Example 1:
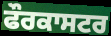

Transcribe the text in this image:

ਫੌਰਕਾਸਟਰ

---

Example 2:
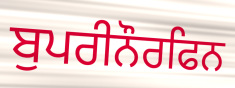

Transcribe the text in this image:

ਬੁਪਰੀਨੌਰਫਿਨ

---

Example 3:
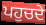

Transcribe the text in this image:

ਪਹੁਚਦੇ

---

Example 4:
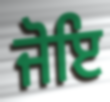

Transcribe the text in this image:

ਜੋਇ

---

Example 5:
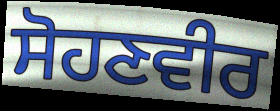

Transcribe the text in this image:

ਸੋਹਣਵੀਰ